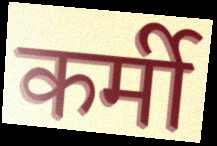
कर्मी